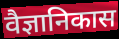
वैज्ञानिकास